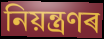
নিয়ন্ত্ৰণৰ